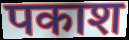
पकाश